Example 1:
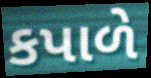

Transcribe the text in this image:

કપાળે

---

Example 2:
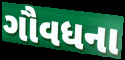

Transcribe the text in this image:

ગૌવધના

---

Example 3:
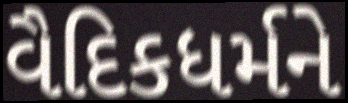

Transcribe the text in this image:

વૈદિકધર્મને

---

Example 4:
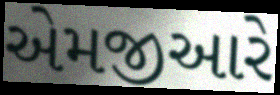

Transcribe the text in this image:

એમજીઆરે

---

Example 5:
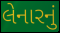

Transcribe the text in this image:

લેનારનું